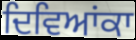
ਦਿਵਿਆਂਕਾ